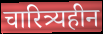
चारित्र्यहीन